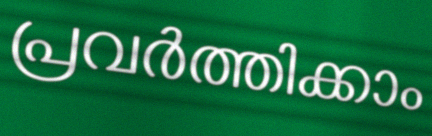
പ്രവർത്തിക്കാം